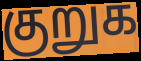
குறுக